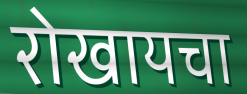
रोखायचा